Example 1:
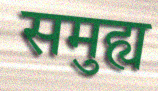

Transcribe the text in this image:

समुह्य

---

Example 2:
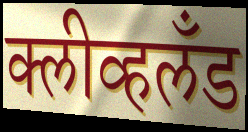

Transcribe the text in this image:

क्लीव्हलँड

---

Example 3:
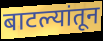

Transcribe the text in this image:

बाटल्यांतून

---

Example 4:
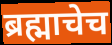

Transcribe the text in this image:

ब्रह्माचेच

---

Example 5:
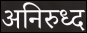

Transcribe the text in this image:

अनिरुध्द